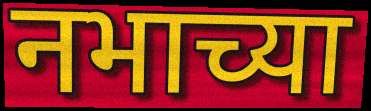
नभाच्या